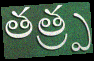
తత్ర్ప